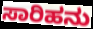
ಸಾರಿಹನು